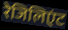
रेजिलिएंट